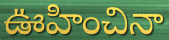
ఊహించినా